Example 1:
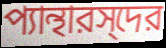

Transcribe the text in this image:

প্যান্থারস্‌দের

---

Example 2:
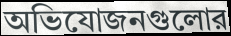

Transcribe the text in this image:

অভিযোজনগুলোর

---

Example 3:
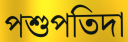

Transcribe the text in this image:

পশুপতিদা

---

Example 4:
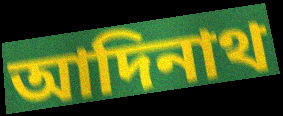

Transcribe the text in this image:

আদিনাথ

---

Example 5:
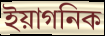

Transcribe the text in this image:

ইয়াগনিক